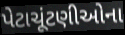
પેટાચૂંટણીઓના